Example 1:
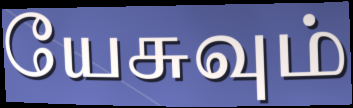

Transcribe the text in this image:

யேசுவும்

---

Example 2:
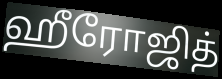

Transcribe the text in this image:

ஹீரோஜித்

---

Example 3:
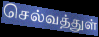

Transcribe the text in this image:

செல்வத்துள்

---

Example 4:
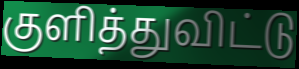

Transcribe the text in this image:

குளித்துவிட்டு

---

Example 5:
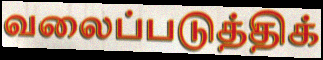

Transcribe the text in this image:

வலைப்படுத்திக்